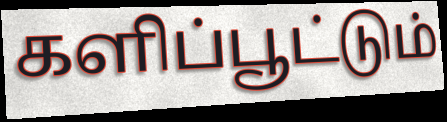
களிப்பூட்டும்